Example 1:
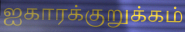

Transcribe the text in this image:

ஐகாரக்குறுக்கம்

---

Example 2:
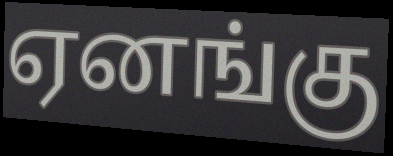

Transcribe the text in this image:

ஏனங்கு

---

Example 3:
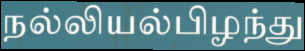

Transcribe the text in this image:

நல்லியல்பிழந்து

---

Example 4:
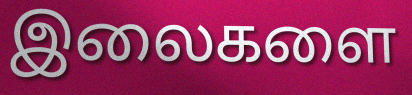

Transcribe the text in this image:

இலைகளை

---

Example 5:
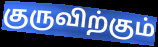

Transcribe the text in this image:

குருவிற்கும்